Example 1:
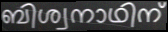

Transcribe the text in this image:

ബിശ്വനാഥിന്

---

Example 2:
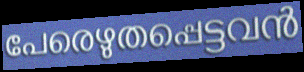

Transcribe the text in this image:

പേരെഴുതപ്പെട്ടവൻ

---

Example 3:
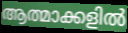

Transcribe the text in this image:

ആത്മാക്കളിൽ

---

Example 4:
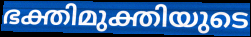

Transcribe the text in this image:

ഭക്തിമുക്തിയുടെ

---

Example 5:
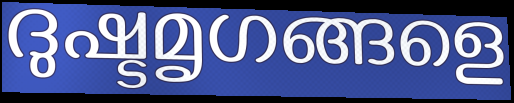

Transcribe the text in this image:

ദുഷ്ടമൃഗങ്ങളെ